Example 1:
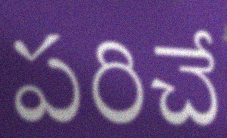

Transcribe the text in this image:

పరిచే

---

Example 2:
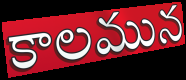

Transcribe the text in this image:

కాలమున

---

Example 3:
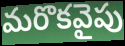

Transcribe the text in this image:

మరొకవైపు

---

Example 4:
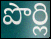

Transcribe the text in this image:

పొర్లి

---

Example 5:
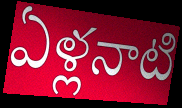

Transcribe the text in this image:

ఏళ్లనాటి